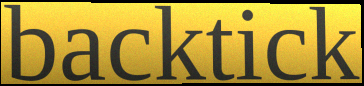
backtick